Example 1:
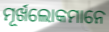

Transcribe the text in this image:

ମୂର୍ଖଲୋକମାନେ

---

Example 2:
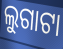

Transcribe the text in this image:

ଲୁଗାଟା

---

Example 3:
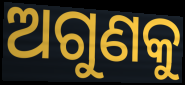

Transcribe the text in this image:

ଅଗୁଣକୁ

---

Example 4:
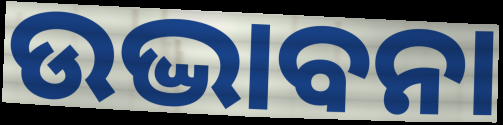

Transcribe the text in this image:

ଉଦ୍ଭାବନା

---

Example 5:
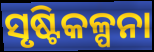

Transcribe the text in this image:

ସୃଷ୍ଟିକଳ୍ପନା